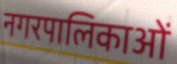
नगरपालिकाओं